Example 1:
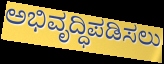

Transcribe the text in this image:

ಅಭಿವೃದ್ಧಿಪಡಿಸಲು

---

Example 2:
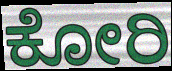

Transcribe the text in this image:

ಕೋರಿ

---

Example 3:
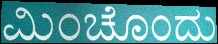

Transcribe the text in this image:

ಮಿಂಚೊಂದು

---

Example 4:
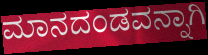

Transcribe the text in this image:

ಮಾನದಂಡವನ್ನಾಗಿ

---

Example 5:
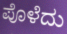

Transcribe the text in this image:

ಪೊಳೆದು